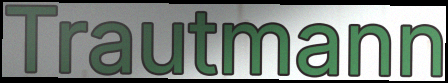
Trautmann